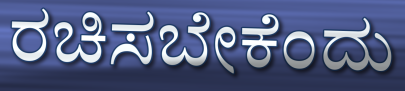
ರಚಿಸಬೇಕೆಂದು